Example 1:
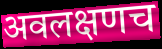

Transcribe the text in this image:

अवलक्षणच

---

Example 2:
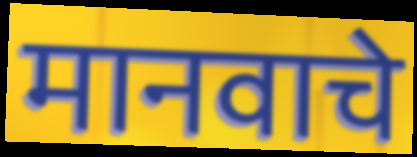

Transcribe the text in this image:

मानवाचे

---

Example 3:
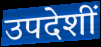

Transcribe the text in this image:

उपदेशीं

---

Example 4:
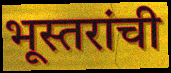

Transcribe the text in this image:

भूस्तरांची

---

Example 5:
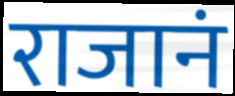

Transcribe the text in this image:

राजानं